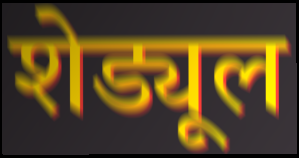
शेड्यूल